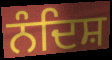
ਨੰਦਿਸ਼